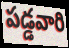
పడ్డవారి